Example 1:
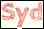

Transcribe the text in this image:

Syd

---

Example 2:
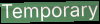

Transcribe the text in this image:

Temporary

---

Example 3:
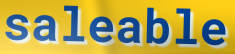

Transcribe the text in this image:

saleable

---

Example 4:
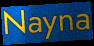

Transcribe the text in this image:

Nayna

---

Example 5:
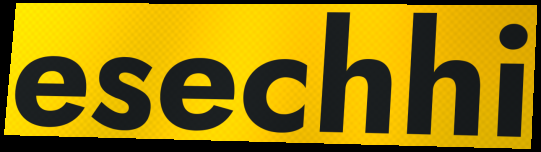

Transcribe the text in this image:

esechhi